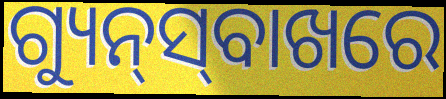
ଗ୍ୟୁନ୍‍ସ୍‍ବାଖରେ